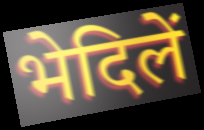
भेदिलें